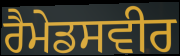
ਰੈਮੇਡਸਵੀਰ